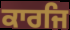
ਕਾਰਜਿ